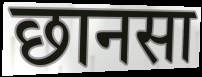
छानसा